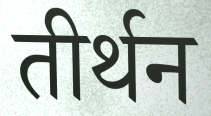
तीर्थन